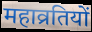
महाव्रतियों